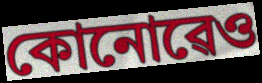
কোনোৱেও